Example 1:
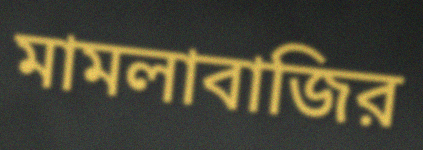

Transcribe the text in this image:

মামলাবাজির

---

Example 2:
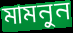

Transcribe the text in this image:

মামনুন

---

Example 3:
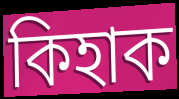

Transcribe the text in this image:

কিহাক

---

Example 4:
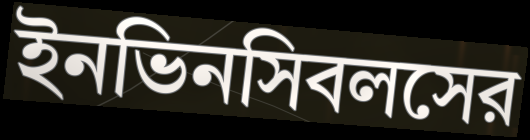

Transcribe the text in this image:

ইনভিনসিবলসের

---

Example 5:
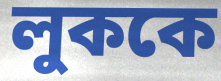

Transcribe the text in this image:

লুককে